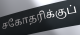
சகோதரிக்குப்